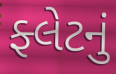
ફ્લેટનું